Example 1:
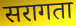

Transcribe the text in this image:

सरागता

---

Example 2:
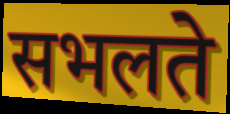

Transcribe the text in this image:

सभलते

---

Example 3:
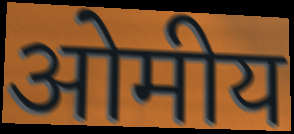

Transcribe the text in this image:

ओमीय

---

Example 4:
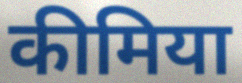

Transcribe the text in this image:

कीमिया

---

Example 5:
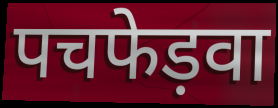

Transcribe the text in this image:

पचफेड़वा